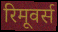
रिमूवर्स